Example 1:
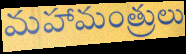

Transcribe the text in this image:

మహామంత్రులు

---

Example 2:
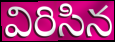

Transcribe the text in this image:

విరిసిన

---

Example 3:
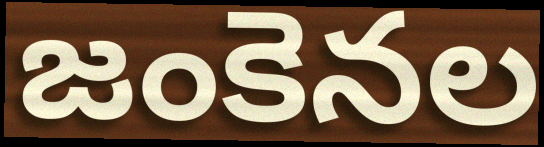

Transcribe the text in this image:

జంకెనల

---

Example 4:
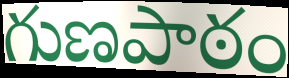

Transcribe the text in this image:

గుణపాఠం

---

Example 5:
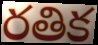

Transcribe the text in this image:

రతిక